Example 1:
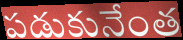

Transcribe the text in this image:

పడుకునేంత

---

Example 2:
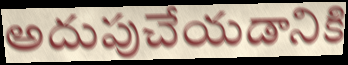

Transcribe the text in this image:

అదుపుచేయడానికి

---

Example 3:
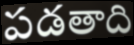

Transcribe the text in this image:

పడతాది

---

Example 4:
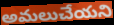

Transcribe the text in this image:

అమలుచేయని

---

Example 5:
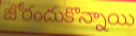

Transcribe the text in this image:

జోరందుకొన్నాయి